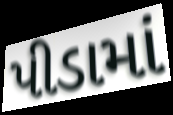
પીડામાં